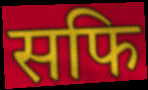
सफि